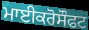
ਮਾਈਕਰੋਸੌਫਟ